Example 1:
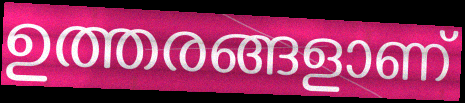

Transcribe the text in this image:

ഉത്തരങ്ങളാണ്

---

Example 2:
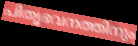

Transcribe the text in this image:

പിതൃഭവനത്തിനും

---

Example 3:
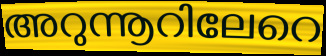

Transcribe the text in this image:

അറുന്നൂറിലേറെ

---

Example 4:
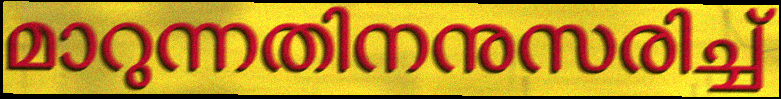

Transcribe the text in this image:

മാറുന്നതിനനുസരിച്ച്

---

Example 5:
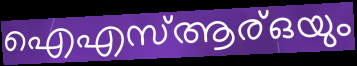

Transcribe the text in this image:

ഐഎസ്ആര്ഒയും